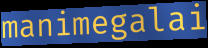
manimegalai